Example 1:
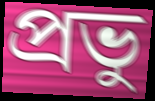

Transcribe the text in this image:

প্ৰভু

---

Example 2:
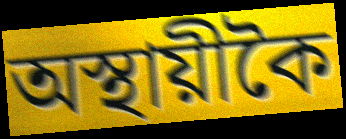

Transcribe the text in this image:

অস্থায়ীকৈ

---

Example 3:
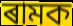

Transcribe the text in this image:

ৰামক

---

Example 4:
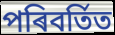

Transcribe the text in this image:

পৰিবৰ্তিত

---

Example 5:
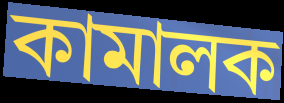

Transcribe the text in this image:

কামালক